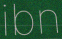
ibn